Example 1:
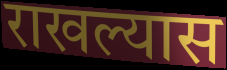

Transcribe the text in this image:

राखल्यास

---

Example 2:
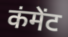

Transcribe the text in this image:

कंमेंट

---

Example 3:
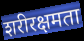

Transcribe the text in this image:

शरीरक्षमता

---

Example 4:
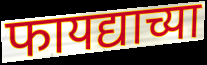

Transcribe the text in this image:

फायद्याच्या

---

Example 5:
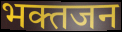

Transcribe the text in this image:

भक्तजन